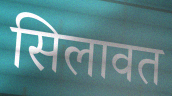
सिलावत